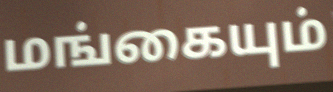
மங்கையும்